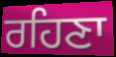
ਰਹਿਣਾ